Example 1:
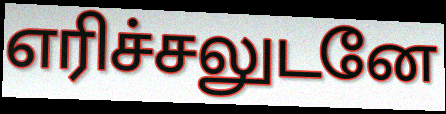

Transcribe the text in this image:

எரிச்சலுடனே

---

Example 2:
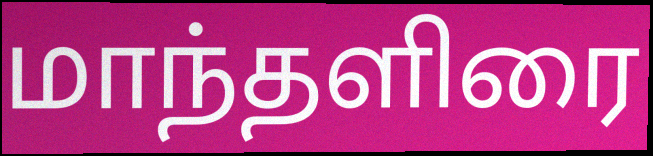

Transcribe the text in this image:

மாந்தளிரை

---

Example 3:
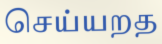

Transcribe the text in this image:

செய்யறத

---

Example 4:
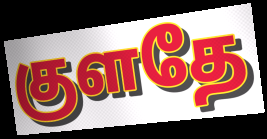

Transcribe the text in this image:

குளதே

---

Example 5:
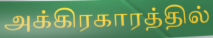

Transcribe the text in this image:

அக்கிரகாரத்தில்